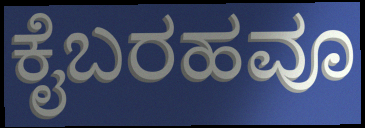
ಕೈಬರಹವೂ